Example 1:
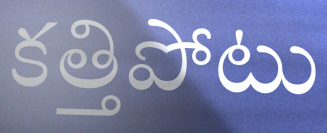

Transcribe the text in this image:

కత్తిపోటు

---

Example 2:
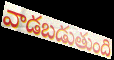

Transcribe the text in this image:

వాడబడుతుంది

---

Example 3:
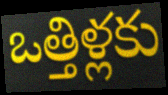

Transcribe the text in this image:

ఒత్తిళ్లకు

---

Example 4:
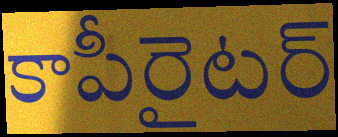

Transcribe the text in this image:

కాపీరైటర్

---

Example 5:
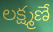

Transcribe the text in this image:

లక్ష్మణే